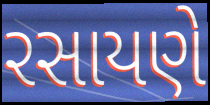
રસાયણે